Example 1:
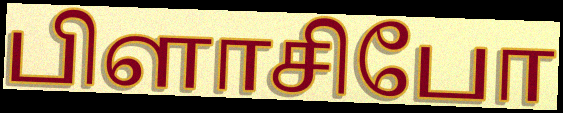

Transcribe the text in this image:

பிளாசிபோ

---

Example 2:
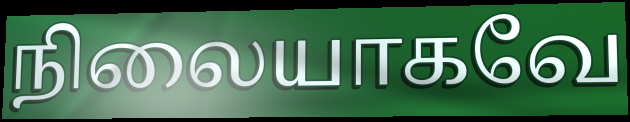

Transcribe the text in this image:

நிலையாகவே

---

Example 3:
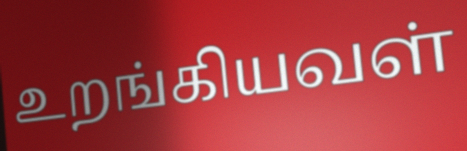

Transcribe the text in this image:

உறங்கியவள்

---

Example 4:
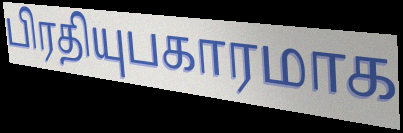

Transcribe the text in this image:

பிரதியுபகாரமாக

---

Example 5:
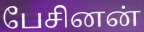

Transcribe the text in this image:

பேசினன்